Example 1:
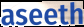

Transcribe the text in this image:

aseeth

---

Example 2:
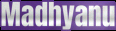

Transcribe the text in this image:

Madhyanu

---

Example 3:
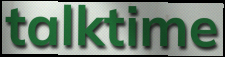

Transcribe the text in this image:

talktime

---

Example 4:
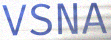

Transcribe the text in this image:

VSNA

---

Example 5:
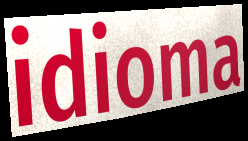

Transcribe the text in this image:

idioma